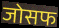
जोसफ